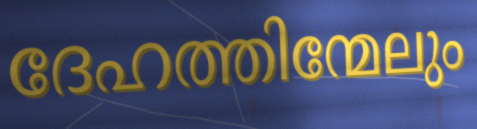
ദേഹത്തിന്മേലും